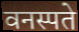
वनस्पते